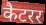
कैटरर